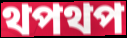
থপথপ